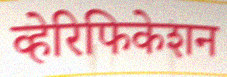
व्हेरिफिकेशन